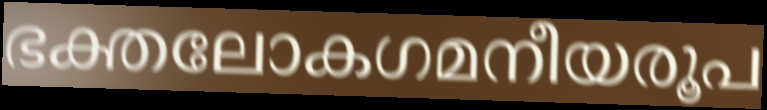
ഭക്തലോകഗമനീയരൂപ